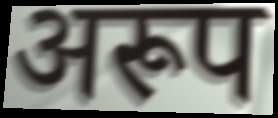
अरूप